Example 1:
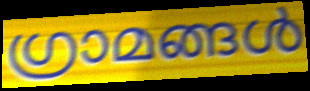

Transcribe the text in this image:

ഗ്രാമങ്ങൾ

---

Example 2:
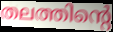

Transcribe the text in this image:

തലത്തിന്റെ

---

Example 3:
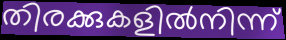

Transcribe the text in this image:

തിരക്കുകളിൽനിന്ന്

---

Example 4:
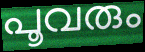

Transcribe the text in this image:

പൂവരും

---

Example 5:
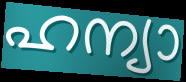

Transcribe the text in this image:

ഹന്യാ